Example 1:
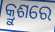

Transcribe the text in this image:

କ୍ରୁଶରେ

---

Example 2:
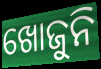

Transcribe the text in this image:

ଖୋଜୁନି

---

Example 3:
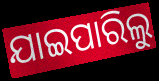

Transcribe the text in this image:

ଯାଇପାରିଲୁ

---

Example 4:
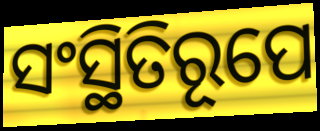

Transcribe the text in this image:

ସଂସ୍ଥିତିରୂପେ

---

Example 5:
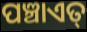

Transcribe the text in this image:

ପଞ୍ଚାଏତ୍